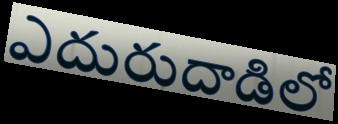
ఎదురుదాడిలో